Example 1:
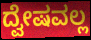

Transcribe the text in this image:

ದ್ವೇಷವಲ್ಲ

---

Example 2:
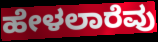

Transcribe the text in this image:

ಹೇಳಲಾರೆವು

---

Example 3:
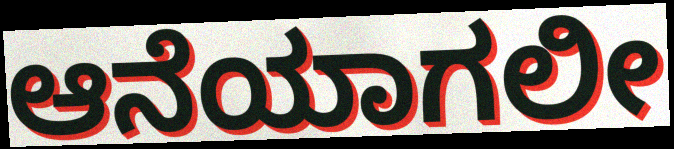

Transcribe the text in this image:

ಆನೆಯಾಗಲೀ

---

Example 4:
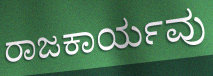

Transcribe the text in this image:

ರಾಜಕಾರ್ಯವು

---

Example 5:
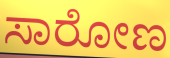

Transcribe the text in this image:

ಸಾರೋಣ